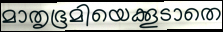
മാതൃഭൂമിയെക്കൂടാതെ